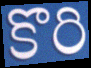
కొరి